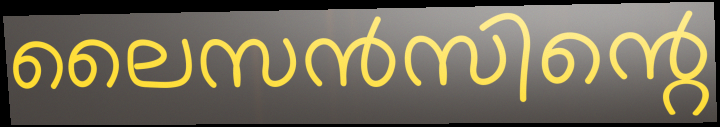
ലൈസൻസിന്റെ